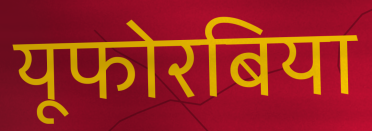
यूफोरबिया